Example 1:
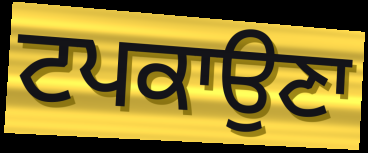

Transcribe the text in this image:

ਟਪਕਾਉਣਾ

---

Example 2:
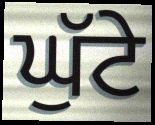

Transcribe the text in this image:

ਘੁੱਟੇ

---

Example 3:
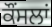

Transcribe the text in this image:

ਕੌਂਸਲਾਂ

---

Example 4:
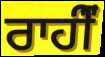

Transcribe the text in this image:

ਰਾਹੀਂੰ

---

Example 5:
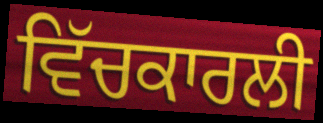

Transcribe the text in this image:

ਵਿੱਚਕਾਰਲੀ